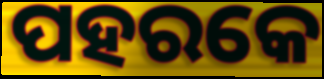
ପହରକେ